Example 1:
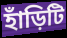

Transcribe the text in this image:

হাঁড়িটি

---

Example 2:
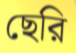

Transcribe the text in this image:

ছেরি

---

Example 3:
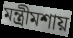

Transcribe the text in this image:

মন্ত্রীমশায়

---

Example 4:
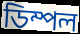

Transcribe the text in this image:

ডিম্পল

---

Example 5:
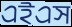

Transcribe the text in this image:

এইএস